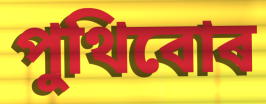
পুথিবোৰ